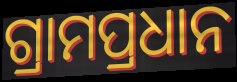
ଗ୍ରାମପ୍ରଧାନ